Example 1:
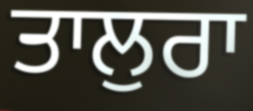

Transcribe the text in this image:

ਤਾਲੁਰਾ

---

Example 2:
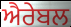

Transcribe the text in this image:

ਐਰੇਬਲ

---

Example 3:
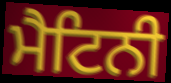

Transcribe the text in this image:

ਮੈਟਿਨੀ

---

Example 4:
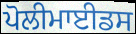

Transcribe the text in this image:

ਪੋਲੀਮਾਈਡਸ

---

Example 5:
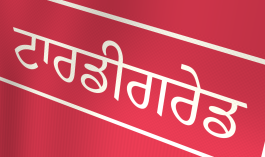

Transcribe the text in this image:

ਟਾਰਡੀਗਰੇਡ